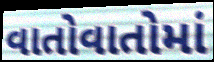
વાતોવાતોમાં